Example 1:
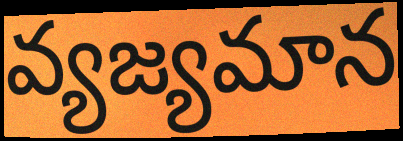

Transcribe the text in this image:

వ్యజ్యమాన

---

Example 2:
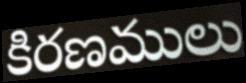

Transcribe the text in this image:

కిరణములు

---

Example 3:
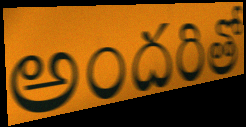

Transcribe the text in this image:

అందరితో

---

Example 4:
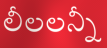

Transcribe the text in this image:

లీలలన్నీ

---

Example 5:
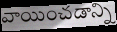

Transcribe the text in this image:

వాయించడాన్ని